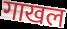
गाखल